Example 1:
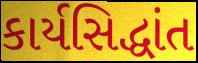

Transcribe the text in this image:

કાર્યસિદ્ધાંત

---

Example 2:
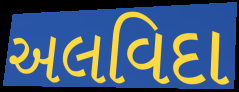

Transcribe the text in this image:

અલવિદા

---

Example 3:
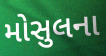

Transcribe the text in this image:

મોસુલના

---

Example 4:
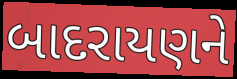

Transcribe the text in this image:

બાદરાયણને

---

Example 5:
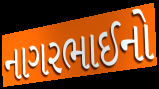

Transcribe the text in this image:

નાગરભાઈનો